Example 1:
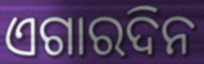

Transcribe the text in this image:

ଏଗାରଦିନ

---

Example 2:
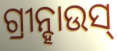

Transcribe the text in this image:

ଗ୍ରୀନ୍ହାଉସ୍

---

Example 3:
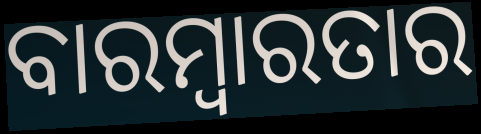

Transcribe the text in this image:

ବାରମ୍ବାରତାର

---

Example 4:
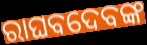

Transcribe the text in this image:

ରାଘବଦେବଙ୍କ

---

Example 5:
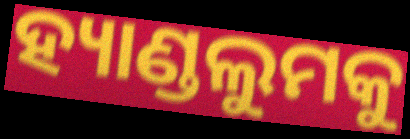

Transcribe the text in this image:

ହ୍ୟାଣ୍ଡଲୁମକୁ